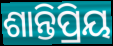
ଶାନ୍ତିପ୍ରିୟ